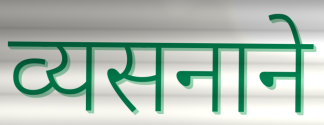
व्यसनाने